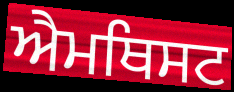
ਐਮਥਿਸਟ